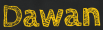
Dawan